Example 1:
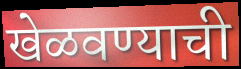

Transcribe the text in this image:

खेळवण्याची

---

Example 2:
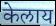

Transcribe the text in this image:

केलाय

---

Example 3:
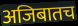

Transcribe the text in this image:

अजिबातच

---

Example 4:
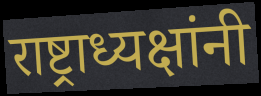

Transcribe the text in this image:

राष्ट्राध्यक्षांनी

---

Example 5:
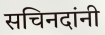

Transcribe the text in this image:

सचिनदांनी